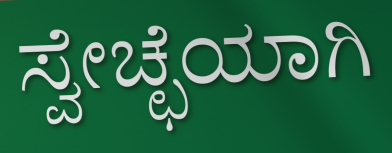
ಸ್ವೇಚ್ಛೆಯಾಗಿ